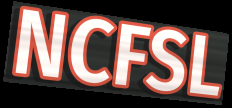
NCFSL